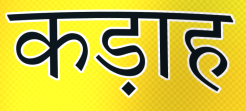
कड़ाह